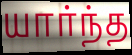
யார்ந்த